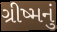
ગ્રીષ્મનું